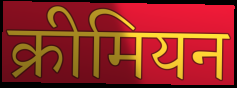
क्रीमियन